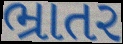
ભ્રાતર